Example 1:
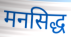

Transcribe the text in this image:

मनसिद्ध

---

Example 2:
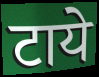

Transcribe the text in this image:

टाये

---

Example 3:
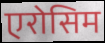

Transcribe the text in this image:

एरोसिम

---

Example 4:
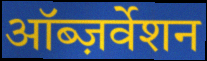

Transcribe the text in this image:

ऑब्ज़र्वेशन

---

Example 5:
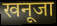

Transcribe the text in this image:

खनूजा